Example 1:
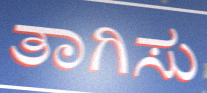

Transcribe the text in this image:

ತಾಗಿಸು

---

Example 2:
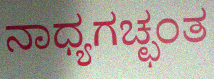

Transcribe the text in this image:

ನಾಧ್ಯಗಚ್ಛಂತ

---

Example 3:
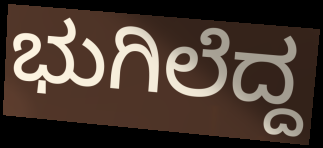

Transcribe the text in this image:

ಭುಗಿಲೆದ್ದ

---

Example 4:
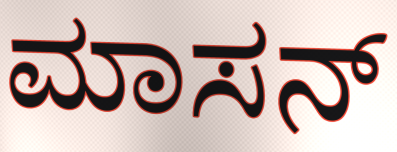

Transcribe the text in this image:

ಮಾಸನ್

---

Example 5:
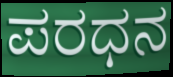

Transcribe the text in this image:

ಪರಧನ